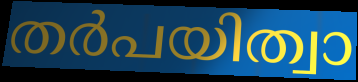
തർപയിത്വാ